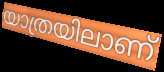
യാത്രയിലാണ്